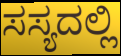
ಸಸ್ಯದಲ್ಲಿ